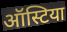
ऑस्टिया